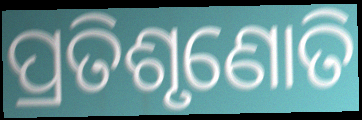
ପ୍ରତିଶୃଣୋତି